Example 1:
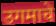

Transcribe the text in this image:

उगमाचे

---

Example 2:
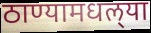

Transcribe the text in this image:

ठाण्यामधल्या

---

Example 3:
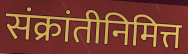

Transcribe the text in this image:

संक्रांतीनिमित्त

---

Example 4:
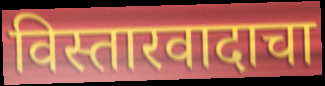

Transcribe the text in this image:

विस्तारवादाचा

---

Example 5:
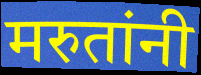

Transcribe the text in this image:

मरुतांनी